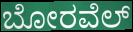
ಬೋರವೆಲ್